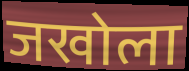
जखोला